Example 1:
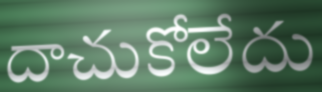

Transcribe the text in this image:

దాచుకోలేదు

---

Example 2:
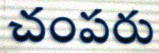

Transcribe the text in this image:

చంపరు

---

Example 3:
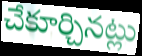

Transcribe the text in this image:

చేకూర్చినట్లు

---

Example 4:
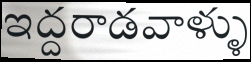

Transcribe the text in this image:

ఇద్దరాడవాళ్ళు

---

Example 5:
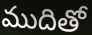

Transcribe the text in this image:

ముదితో